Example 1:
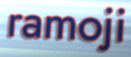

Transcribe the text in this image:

ramoji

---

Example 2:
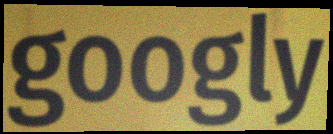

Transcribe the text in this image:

googly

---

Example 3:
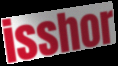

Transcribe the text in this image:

isshor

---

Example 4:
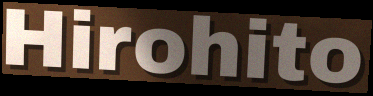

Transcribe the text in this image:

Hirohito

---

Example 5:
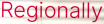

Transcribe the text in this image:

Regionally